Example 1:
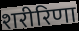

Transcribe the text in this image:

शरीरिणा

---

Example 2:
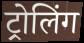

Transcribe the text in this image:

ट्रोलिंग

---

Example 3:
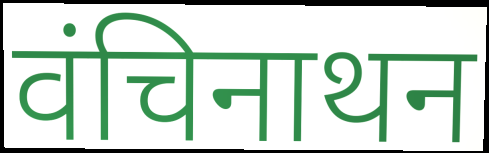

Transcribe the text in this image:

वंचिनाथन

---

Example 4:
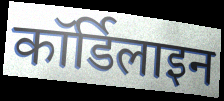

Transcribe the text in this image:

कॉर्डिलाइन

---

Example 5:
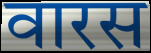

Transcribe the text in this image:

वारस